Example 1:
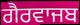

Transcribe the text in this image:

ਗੈਰਵਾਜਬ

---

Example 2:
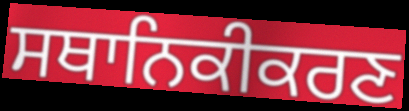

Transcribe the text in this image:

ਸਥਾਨਿਕੀਕਰਣ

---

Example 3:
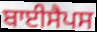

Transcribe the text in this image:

ਬਾਈਸੈਪਸ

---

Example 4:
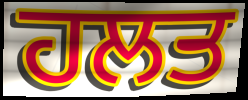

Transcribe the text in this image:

ਹਲਤ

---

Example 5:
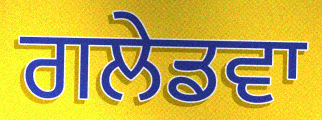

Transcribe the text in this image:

ਗਲੇਡਵਾ